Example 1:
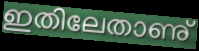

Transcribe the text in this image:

ഇതിലേതാണു്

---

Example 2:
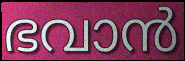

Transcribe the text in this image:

ഭവാൻ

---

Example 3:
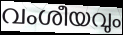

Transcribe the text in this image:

വംശീയവും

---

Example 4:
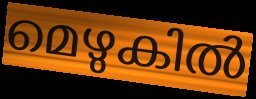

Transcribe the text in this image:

മെഴുകിൽ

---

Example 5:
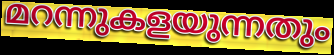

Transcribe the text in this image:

മറന്നുകളയുന്നതും